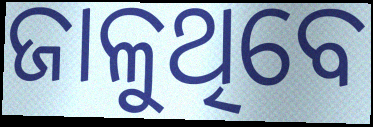
ଜାଳୁଥିବେ